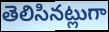
తెలిసినట్లుగా